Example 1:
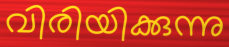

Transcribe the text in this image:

വിരിയിക്കുന്നു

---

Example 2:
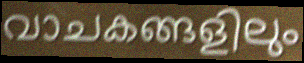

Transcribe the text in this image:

വാചകങ്ങളിലും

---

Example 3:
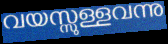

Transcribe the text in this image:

വയസ്സുള്ളവന്നു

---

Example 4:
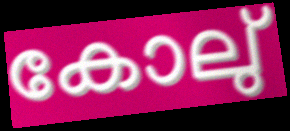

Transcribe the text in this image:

കോലു്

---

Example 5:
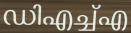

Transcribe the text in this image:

ഡിഎച്ച്എ